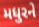
મધુરને